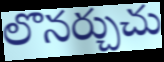
లొనర్చుచు